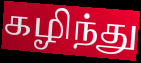
கழிந்து